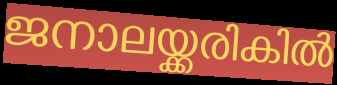
ജനാലയ്ക്കരികിൽ